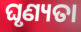
ଘୃଣ୍ୟତା